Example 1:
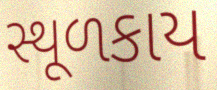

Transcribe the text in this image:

સ્થૂળકાય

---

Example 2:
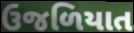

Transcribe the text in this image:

ઉજળિયાત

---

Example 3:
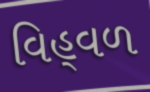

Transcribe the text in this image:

વિહ્‌વળ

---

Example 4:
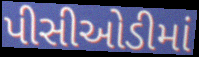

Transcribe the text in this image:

પીસીઓડીમાં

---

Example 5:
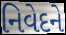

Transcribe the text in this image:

નિવેદને